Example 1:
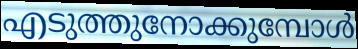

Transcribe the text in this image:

എടുത്തുനോക്കുമ്പോൾ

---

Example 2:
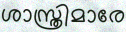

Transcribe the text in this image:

ശാസ്ത്രിമാരേ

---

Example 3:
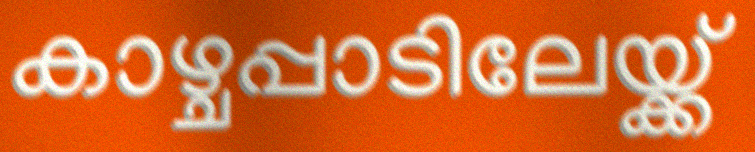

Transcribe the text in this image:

കാഴ്ചപ്പാടിലേയ്ക്ക്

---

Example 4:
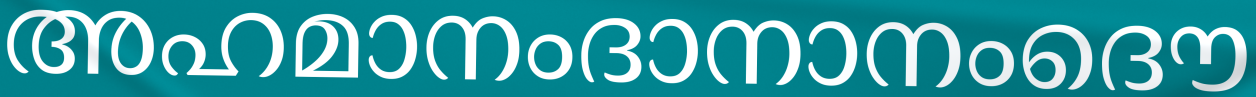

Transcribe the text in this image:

അഹമാനംദാനാനംദൌ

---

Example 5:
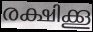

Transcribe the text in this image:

രക്ഷിക്കൂ